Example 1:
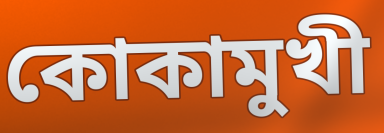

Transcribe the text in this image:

কোকামুখী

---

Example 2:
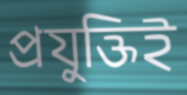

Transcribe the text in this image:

প্রযুক্তিই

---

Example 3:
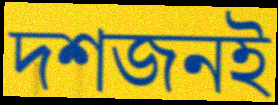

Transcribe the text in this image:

দশজনই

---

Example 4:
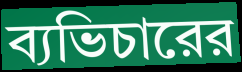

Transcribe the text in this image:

ব্যভিচারের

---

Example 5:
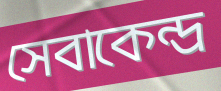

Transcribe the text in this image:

সেবাকেন্দ্র